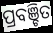
ପ୍ରବଞ୍ଚିତ